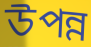
উপন্ন